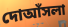
দোআঁসলা